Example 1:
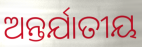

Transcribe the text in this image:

ଅନ୍ତର୍ଯାତୀୟ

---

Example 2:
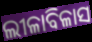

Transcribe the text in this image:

ଲୀଳାବିଳାସ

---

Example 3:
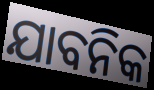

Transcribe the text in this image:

ଯାବନିକ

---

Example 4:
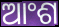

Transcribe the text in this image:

ଆଂଶ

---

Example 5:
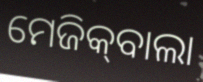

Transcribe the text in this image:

ମେଜିକ୍‍ବାଲା